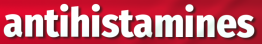
antihistamines